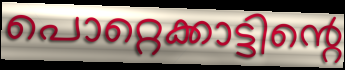
പൊറ്റെക്കാട്ടിന്റെ